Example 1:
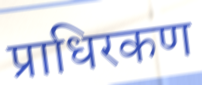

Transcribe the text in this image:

प्राधिरकण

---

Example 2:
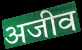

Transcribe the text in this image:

अजीव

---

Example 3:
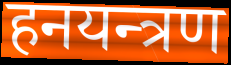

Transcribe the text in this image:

हनयन्त्रण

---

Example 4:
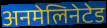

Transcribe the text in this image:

अनमेलिनेटेड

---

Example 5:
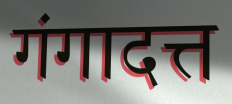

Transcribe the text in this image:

गंगादत्त